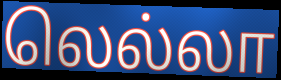
லெல்லா